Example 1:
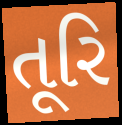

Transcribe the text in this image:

તૂરિ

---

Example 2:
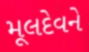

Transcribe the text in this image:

મૂલદેવને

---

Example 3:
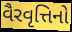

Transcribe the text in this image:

વૈરવૃત્તિનો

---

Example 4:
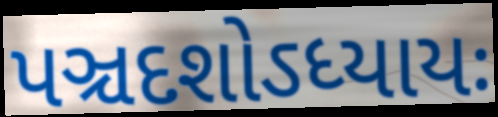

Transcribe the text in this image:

પઞ્ચદશોઽધ્યાયઃ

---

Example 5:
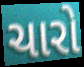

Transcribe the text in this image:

ચારો